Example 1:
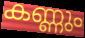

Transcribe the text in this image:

കണ്ണും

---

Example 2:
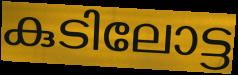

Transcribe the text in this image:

കുടിലോട്ട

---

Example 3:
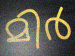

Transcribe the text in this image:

മിർ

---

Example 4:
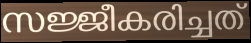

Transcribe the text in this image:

സജ്ജീകരിച്ചത്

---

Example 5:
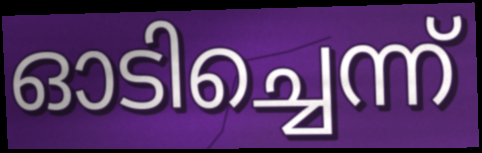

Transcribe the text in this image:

ഓടിച്ചെന്ന്